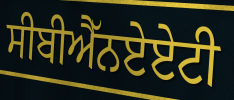
ਸੀਬੀਐੱਨਏਏਟੀ